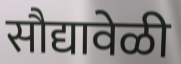
सौद्यावेळी